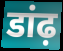
डांढ़